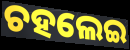
ଚହଲେଇ